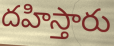
దహిస్తారు